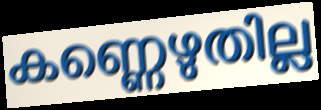
കണ്ണെഴുതില്ല